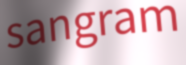
sangram